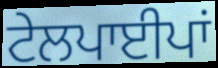
ਟੇਲਪਾਈਪਾਂ